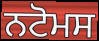
ਨਟੋਮਸ